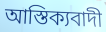
আস্তিক্যবাদী